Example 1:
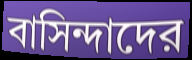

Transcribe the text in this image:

বাসিন্দাদের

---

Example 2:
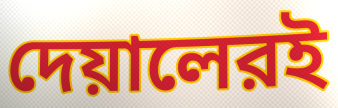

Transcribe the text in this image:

দেয়ালেরই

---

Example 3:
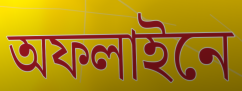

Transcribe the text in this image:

অফলাইনে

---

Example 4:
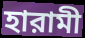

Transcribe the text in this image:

হারামী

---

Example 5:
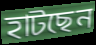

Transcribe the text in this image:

হাটছেন